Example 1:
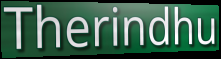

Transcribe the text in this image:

Therindhu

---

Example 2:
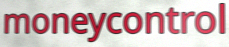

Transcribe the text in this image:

moneycontrol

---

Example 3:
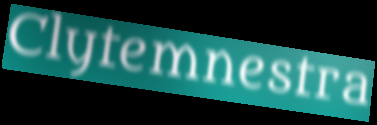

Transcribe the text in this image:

Clytemnestra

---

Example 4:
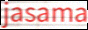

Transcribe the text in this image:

jasama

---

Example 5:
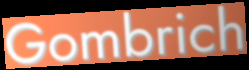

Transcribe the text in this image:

Gombrich